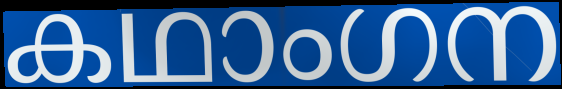
കഥാംഗന